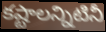
కష్టాలన్నిటినీ